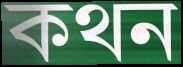
কথন